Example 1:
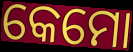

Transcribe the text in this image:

କେମୋ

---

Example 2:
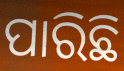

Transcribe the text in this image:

ପାରିଛି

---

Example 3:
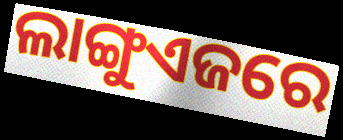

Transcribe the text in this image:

ଲାଙ୍ଗୁଏଜରେ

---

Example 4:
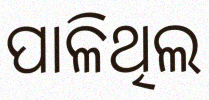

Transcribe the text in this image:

ପାଳିଥିଲ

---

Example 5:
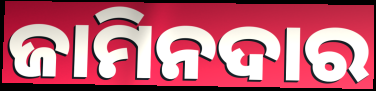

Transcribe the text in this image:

ଜାମିନଦାର